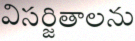
విసర్జితాలను